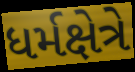
ધર્મક્ષેત્રે